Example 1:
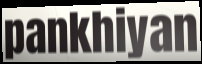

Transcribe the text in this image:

pankhiyan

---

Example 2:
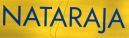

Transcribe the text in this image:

NATARAJA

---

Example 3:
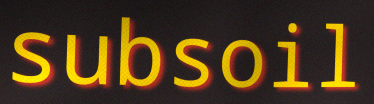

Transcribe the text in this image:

subsoil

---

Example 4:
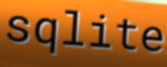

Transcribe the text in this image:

sqlite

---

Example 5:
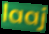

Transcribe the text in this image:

laaj